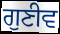
ਗੁਣੀਵ